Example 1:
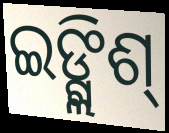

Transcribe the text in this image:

ଇଙ୍ଗ୍ଲିଶ୍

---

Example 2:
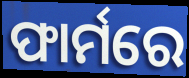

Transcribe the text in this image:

ଫାର୍ମରେ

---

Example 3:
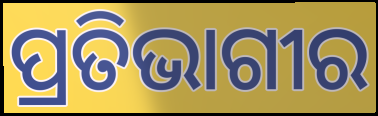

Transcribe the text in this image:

ପ୍ରତିଭାଗୀର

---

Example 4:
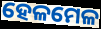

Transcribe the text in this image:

ହେଳମେଳ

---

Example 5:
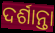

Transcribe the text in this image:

ଦର୍ଶାନ୍ତା